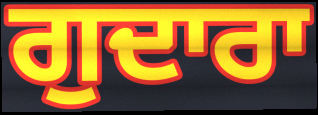
ਗੁਦਾਰਾ